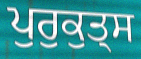
ਪੁਰੁਕੁਤ੍ਸ